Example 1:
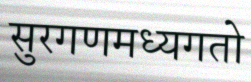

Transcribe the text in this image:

सुरगणमध्यगतो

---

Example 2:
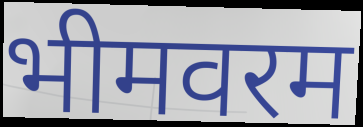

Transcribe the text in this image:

भीमवरम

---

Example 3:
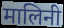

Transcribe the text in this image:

मालिनी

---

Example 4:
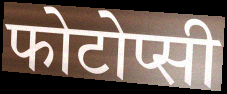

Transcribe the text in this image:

फोटोप्सी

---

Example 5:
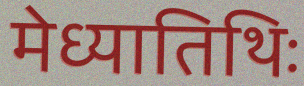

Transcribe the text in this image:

मेध्यातिथिः